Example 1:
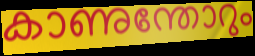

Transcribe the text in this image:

കാണുന്തോറും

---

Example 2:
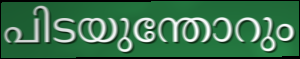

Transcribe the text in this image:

പിടയുന്തോറും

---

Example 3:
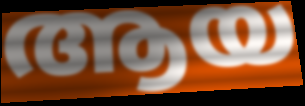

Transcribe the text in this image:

ആയ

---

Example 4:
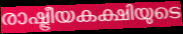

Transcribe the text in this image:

രാഷ്ട്രീയകക്ഷിയുടെ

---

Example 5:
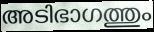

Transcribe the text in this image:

അടിഭാഗത്തും